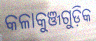
କଳାକୁଞ୍ଜଗୁଡ଼ିକ